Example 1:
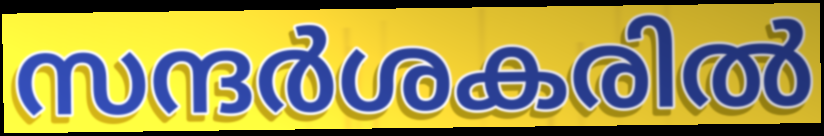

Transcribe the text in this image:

സന്ദർശകരിൽ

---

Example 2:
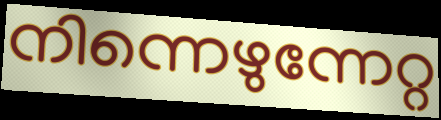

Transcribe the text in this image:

നിന്നെഴുന്നേറ്റ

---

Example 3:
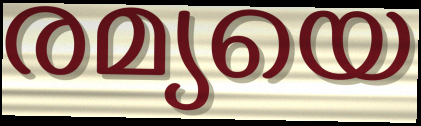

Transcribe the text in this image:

രമ്യയെ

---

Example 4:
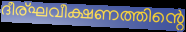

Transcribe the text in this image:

ദീര്ഘവീക്ഷണത്തിന്റെ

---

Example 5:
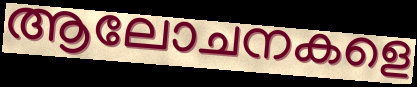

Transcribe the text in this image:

ആലോചനകളെ